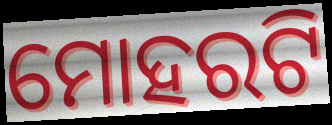
ମୋହରଟି